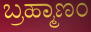
ಬ್ರಹ್ಮಾಣಂ